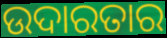
ଉଦାରତାର